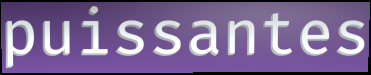
puissantes